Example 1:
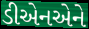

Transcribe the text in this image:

ડીએનએને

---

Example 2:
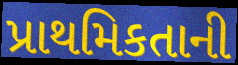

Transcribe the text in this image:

પ્રાથમિકતાની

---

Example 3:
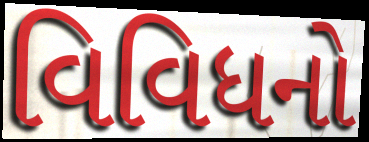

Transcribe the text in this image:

વિવિધનો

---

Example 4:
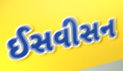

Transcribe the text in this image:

ઈસવીસન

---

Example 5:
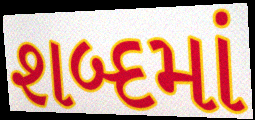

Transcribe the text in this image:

શબ્દમાં